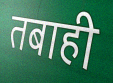
तबाही